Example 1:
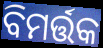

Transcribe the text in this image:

ବିମର୍ତ୍ତକ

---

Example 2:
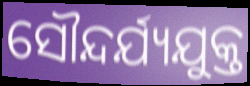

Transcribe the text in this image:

ସୌନ୍ଦର୍ଯ୍ୟଯୁକ୍ତ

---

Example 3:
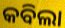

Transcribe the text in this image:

କବିଲା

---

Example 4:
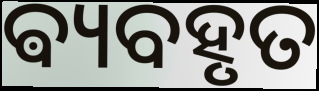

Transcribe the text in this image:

ଵ୍ୟବହୃତ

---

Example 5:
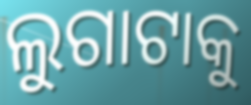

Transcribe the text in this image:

ଲୁଗାଟାକୁ